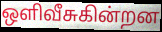
ஒளிவீசுகின்றன